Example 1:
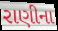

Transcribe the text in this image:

રાણીના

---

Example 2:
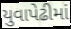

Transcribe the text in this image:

યુવાપેઢીમાં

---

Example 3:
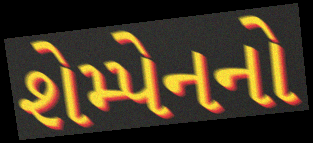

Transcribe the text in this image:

શેમ્પેનનો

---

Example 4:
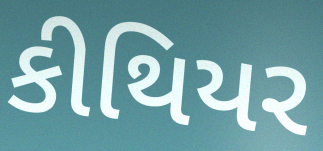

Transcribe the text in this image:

કીથિયર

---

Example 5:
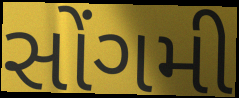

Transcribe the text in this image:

સોંગમી